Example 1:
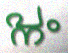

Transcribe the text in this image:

പ്നം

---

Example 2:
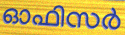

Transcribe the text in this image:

ഓഫിസർ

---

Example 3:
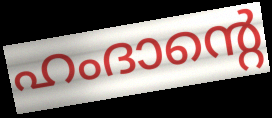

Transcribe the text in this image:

ഹംദാന്റെ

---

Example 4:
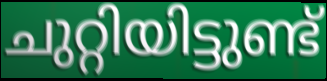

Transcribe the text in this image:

ചുറ്റിയിട്ടുണ്ട്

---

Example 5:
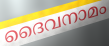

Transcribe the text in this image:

ദൈവനാമം